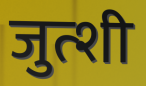
जुत्शी